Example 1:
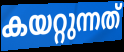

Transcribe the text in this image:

കയറ്റുന്നത്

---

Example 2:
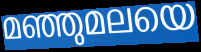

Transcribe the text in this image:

മഞ്ഞുമലയെ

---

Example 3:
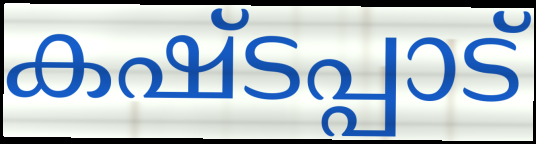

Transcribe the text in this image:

കഷ്ടപ്പാട്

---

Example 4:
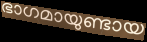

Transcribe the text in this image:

ഭാഗമായുണ്ടായ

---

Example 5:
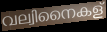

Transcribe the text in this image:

വല്വിനൈകള്